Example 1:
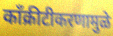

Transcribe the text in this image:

काँक्रीटीकरणामुळे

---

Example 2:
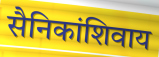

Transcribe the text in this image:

सैनिकांशिवाय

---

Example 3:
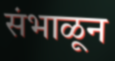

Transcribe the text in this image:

संभाळून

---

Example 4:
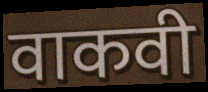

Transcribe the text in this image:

वाकवी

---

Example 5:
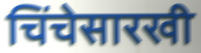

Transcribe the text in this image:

चिंचेसारखी